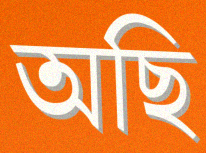
অছি